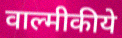
वाल्मीकीये